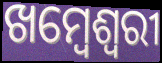
ଖମ୍ବେଶ୍ଵରୀ